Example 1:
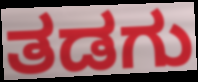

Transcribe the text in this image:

ತಡಗು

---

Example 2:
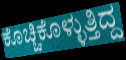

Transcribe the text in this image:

ಕೊಚ್ಚಿಕೊಳ್ಳುತ್ತಿದ್ದ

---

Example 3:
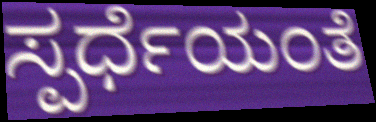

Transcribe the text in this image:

ಸ್ಪರ್ಧೆಯಂತೆ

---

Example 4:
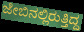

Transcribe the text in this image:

ಜೇಬಿನಲ್ಲಿರುತ್ತಿದ್ದ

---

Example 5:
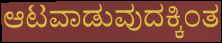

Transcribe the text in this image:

ಆಟವಾಡುವುದಕ್ಕಿಂತ